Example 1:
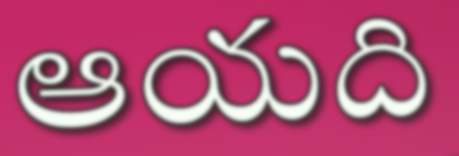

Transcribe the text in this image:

ఆయది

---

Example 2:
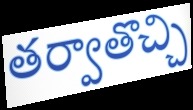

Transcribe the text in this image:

తర్వాతొచ్చి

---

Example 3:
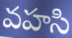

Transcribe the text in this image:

వహసి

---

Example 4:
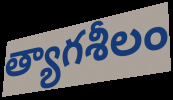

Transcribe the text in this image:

త్యాగశీలం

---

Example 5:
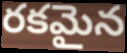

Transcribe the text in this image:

రకమైన